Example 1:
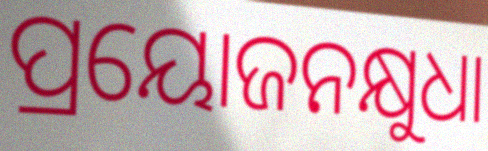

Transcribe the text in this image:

ପ୍ରୟୋଜନକ୍ଷୁଧା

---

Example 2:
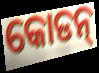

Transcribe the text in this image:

କୋଡନ୍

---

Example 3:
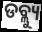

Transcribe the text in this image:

ଡବ୍ଲ୍ୟୁ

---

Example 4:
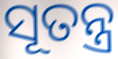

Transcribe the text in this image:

ସୂତନ୍ତ୍ର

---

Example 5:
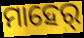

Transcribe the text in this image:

ମାହେର୍